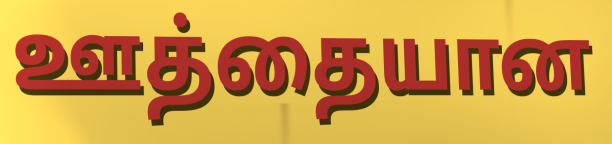
ஊத்தையான